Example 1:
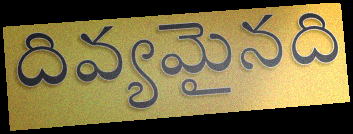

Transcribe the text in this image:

దివ్యమైనది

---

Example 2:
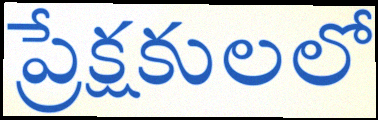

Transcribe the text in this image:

ప్రేక్షకులలో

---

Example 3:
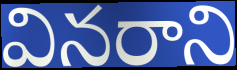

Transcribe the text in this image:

వినరాని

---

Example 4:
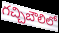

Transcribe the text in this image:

గచ్చిబౌలిలో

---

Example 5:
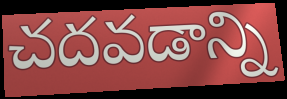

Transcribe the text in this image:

చదవడాన్ని